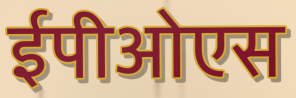
ईपीओएस